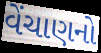
વેંચાણનો